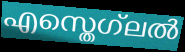
എസ്തെഗ്‌ലൽ